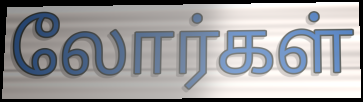
லோர்கள்